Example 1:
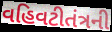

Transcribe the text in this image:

વહિવટીતંત્રની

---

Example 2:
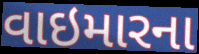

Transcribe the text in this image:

વાઇમારના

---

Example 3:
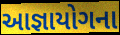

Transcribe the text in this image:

આજ્ઞાયોગના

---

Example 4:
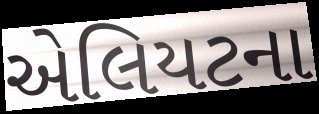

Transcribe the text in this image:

એલિયટના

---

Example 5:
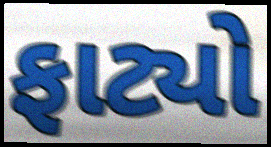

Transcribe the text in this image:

ફાટ્યો